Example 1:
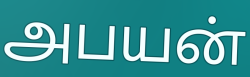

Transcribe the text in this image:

அபயன்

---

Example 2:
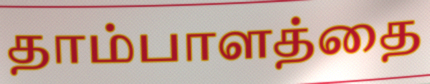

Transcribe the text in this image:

தாம்பாளத்தை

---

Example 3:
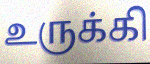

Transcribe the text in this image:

உருக்கி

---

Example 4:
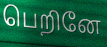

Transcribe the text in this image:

பெறினே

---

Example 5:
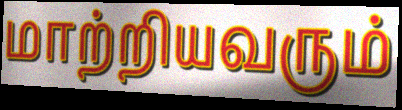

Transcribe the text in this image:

மாற்றியவரும்